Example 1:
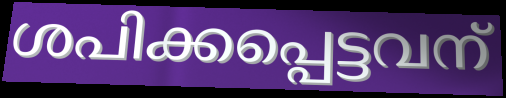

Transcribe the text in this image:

ശപിക്കപ്പെട്ടവന്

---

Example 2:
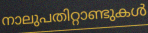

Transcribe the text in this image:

നാലുപതിറ്റാണ്ടുകൾ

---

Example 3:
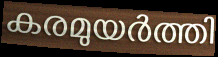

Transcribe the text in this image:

കരമുയർത്തി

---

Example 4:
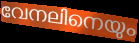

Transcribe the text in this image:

വേനലിനെയും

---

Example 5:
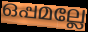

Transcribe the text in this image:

ഒപ്പമല്ലേ